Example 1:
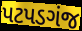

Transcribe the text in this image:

પટપડગંજ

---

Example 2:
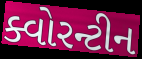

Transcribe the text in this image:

ક્વોરન્ટીન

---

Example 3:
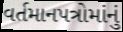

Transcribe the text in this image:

વર્તમાનપત્રોમાંનું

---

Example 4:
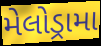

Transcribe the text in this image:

મેલોડ્રામા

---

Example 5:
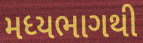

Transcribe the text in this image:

મધ્યભાગથી